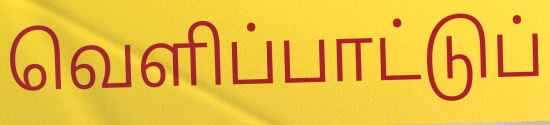
வெளிப்பாட்டுப்